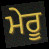
ਮੇਰੂ